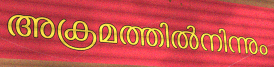
അക്രമത്തിൽനിന്നും